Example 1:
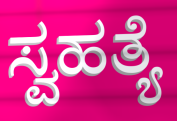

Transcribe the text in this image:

ಸ್ವಹತ್ಯೆ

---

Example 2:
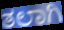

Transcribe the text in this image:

ತಲಾಗಿ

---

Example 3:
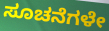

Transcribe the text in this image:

ಸೂಚನೆಗಳೇ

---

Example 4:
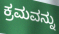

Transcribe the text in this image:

ಕ್ರಮವನ್ನು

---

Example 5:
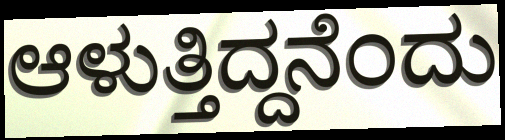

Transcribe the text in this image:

ಆಳುತ್ತಿದ್ದನೆಂದು